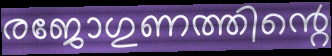
രജോഗുണത്തിന്റെ